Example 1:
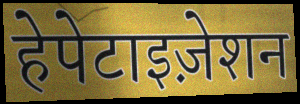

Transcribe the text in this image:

हेपेटाइज़ेशन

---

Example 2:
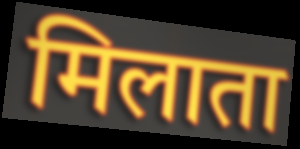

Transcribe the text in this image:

मिलाता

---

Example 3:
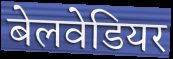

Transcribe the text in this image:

बेलवेडियर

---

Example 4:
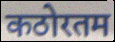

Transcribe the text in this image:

कठोरतम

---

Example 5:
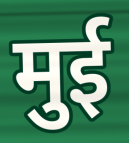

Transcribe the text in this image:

मुई